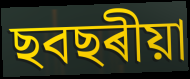
ছবছৰীয়া